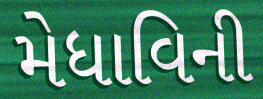
મેધાવિની